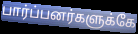
பார்ப்பனர்களுக்கே